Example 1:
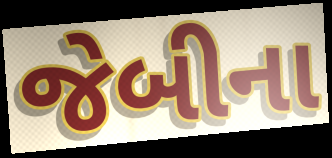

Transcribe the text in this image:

જેબીના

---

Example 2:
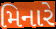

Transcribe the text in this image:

મિનારે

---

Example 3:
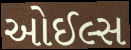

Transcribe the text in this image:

ઓઈલ્સ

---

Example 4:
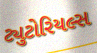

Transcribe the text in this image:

ટ્યુટોરિયલ્સ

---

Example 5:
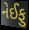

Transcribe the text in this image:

નેઈફુ